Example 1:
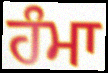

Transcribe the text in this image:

ਹੰਮਾ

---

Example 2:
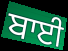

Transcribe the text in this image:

ਬਾਈ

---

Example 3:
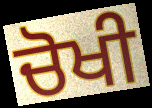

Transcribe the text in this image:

ਚੋਖੀ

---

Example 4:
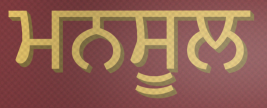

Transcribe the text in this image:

ਮਨਸੂਲ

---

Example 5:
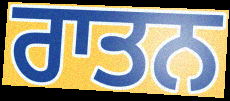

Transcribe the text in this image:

ਰਾਤਨ